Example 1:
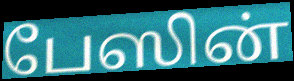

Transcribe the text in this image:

பேஸின்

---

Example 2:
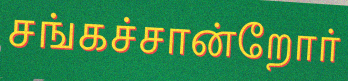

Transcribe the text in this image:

சங்கச்சான்றோர்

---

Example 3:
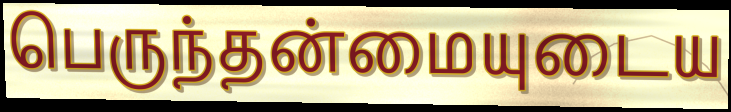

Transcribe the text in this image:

பெருந்தன்மையுடைய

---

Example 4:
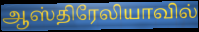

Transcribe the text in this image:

ஆஸ்திரேலியாவில்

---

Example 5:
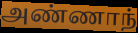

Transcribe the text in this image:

அண்ணாந்